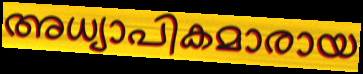
അധ്യാപികമാരായ